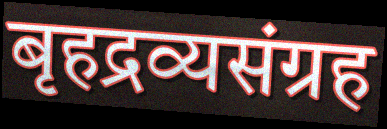
बृहद्रव्यसंग्रह